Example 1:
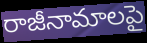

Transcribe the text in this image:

రాజీనామాలపై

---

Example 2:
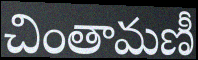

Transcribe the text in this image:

చింతామణీ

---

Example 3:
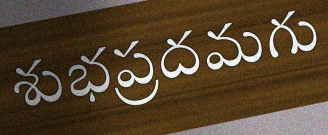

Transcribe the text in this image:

శుభప్రదమగు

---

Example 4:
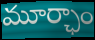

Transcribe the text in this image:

మూర్ఛాం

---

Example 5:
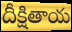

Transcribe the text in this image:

దీక్షితాయ